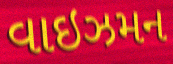
વાઇઝમન